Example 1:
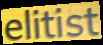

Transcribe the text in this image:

elitist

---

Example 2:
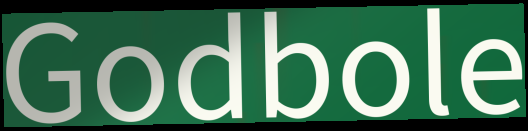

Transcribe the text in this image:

Godbole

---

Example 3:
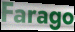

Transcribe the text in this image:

Farago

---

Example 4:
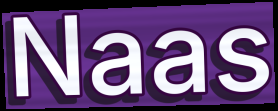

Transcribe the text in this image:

Naas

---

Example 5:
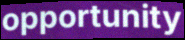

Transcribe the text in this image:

opportunity